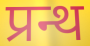
प्रन्थ